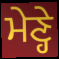
ਮੇਣ੍ਹੇ